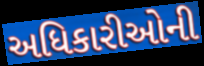
અધિકારીઓની